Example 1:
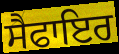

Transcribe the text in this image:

ਸੈਫਾਇਰ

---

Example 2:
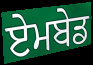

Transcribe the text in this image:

ਏਮਬੇਡ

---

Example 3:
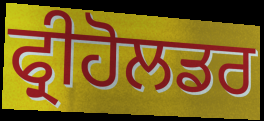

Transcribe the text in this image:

ਫ੍ਰੀਹੋਲਡਰ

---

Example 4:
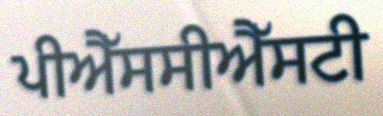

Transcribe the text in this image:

ਪੀਐੱਸਸੀਐੱਸਟੀ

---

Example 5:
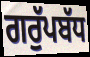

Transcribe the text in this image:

ਗਰੁੱਪਬੱਧ